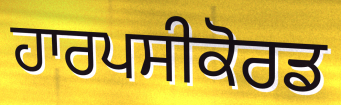
ਹਾਰਪਸੀਕੋਰਡ